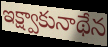
ఇక్ష్వాకునాథేన